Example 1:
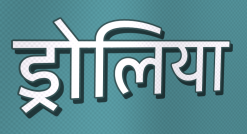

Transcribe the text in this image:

ड्रोलिया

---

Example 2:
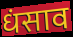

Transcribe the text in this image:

धंसाव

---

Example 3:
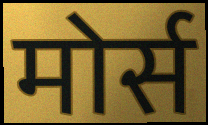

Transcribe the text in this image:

मोर्स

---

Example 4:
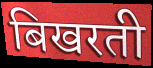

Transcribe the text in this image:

बिखरती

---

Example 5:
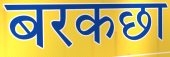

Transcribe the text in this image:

बरकछा